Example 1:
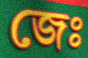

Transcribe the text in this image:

জেঃ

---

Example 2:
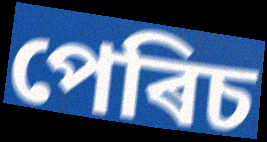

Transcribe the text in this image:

পেৰিচ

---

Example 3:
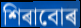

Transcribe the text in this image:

শিৰাবোৰ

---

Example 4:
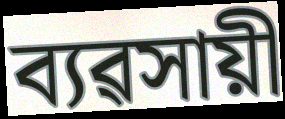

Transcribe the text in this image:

ব্যৱসায়ী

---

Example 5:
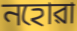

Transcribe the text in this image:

নহোৱা